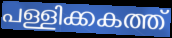
പള്ളിക്കകത്ത്